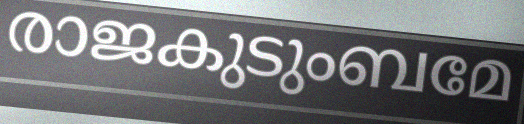
രാജകുടുംബമേ